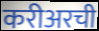
करीअरची